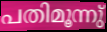
പതിമൂന്നു്